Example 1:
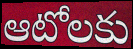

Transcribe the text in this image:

ఆటోలకు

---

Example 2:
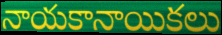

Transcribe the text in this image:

నాయకానాయికలు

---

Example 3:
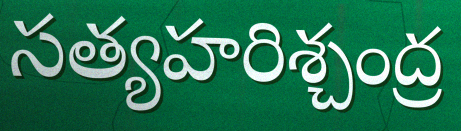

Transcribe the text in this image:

సత్యహరిశ్చంద్ర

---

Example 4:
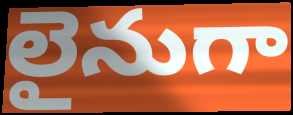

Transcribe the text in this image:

లైనుగా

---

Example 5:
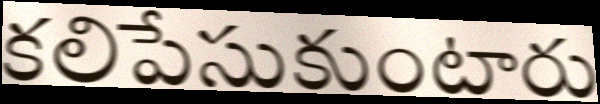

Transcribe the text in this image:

కలిపేసుకుంటారు